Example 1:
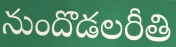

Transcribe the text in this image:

నుందొడలరీతి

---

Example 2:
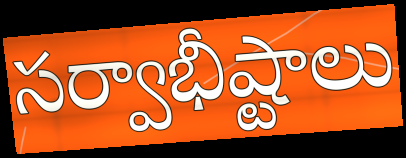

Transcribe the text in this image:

సర్వాభీష్టాలు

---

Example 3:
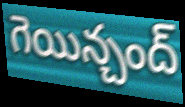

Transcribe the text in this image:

గెయిన్చంద్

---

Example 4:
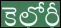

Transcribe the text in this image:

కెలోరీ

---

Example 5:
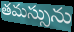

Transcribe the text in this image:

తమస్సును